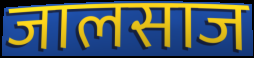
जालसाज